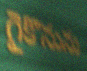
గైకొనును